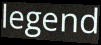
legend